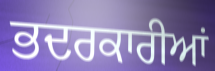
ਭਦਰਕਾਰੀਆਂ